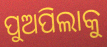
ପୁଅପିଲାକୁ